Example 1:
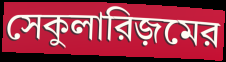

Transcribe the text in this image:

সেকুলারিজ়মের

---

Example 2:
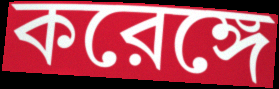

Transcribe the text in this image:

করেঙ্গে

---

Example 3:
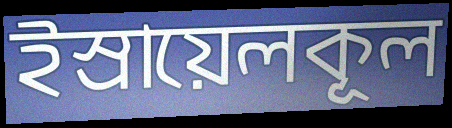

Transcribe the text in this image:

ইস্রায়েলকূল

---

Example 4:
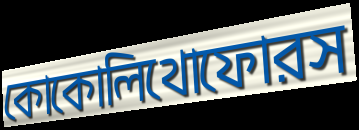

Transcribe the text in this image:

কোকোলিথোফোরস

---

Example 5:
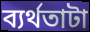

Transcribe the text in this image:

ব্যর্থতাটা